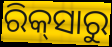
ରିକ୍‌ସାରୁ